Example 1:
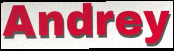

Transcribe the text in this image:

Andrey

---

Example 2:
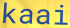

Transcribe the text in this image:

kaai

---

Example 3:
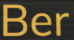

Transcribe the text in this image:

Ber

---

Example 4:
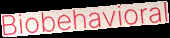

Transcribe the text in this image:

Biobehavioral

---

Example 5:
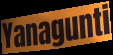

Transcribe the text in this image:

Yanagunti